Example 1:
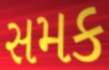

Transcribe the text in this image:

સમક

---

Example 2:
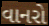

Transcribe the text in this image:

વાનરો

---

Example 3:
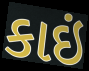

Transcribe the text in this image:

કાઇં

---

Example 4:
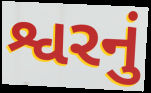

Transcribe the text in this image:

શ્વરનું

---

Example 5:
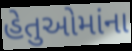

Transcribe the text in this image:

હેતુઓમાંના